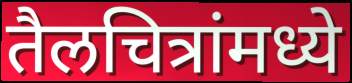
तैलचित्रांमध्ये